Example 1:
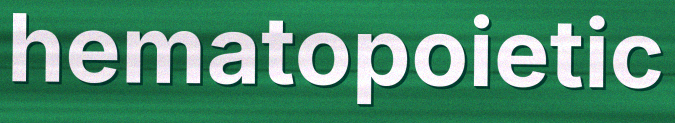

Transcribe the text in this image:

hematopoietic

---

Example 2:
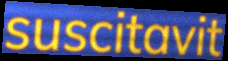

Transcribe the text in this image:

suscitavit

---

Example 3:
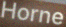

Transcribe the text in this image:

Horne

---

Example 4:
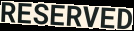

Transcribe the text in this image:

RESERVED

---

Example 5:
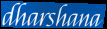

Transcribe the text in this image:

dharshana